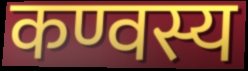
कण्वस्य